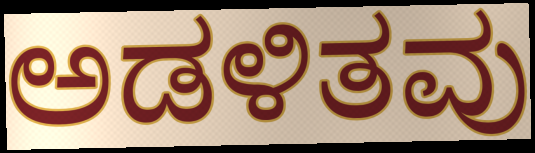
ಅಡಳಿತವು